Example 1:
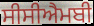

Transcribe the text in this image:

ਸੀਸੀਐਮਬੀ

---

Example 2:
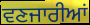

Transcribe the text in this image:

ਵਣਜਾਰੀਆਂ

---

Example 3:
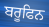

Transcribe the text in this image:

ਬਰੂਫਿਨ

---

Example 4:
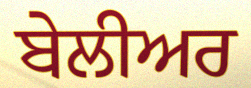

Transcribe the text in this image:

ਬੇਲੀਅਰ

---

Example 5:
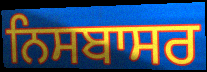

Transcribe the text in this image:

ਨਿਸਬਾਸਰ